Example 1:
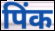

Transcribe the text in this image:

पिंक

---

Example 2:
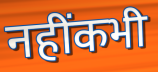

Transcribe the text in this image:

नहींकभी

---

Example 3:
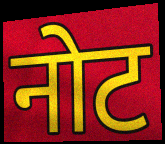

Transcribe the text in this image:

नोट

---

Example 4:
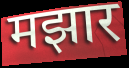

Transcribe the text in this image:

मझार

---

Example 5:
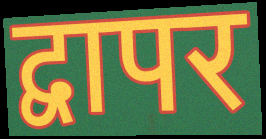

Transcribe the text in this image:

द्वापर